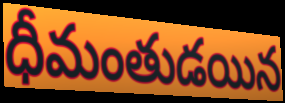
ధీమంతుడయిన